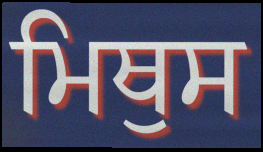
ਮਿਥੁਸ